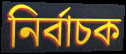
নির্বাচক